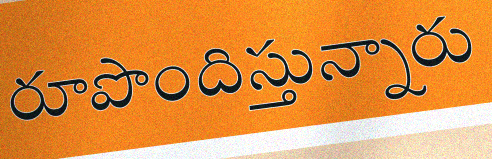
రూపొందిస్తున్నారు